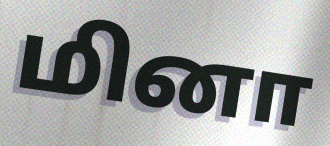
மினா